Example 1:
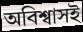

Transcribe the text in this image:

অবিশ্বাসই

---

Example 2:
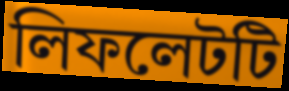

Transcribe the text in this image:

লিফলেটটি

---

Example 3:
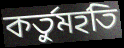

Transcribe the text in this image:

কর্তুমর্হতি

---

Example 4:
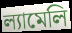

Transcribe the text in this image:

ল্যামেলি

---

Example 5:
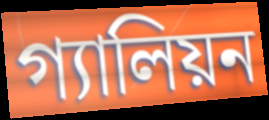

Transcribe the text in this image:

গ্যালিয়ন